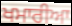
ਖਮਾਰੀਆ